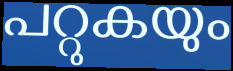
പറ്റുകയും